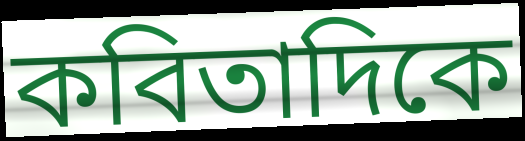
কবিতাদিকে